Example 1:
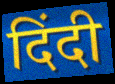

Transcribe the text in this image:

दिंदी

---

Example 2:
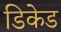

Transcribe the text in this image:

डिकेड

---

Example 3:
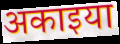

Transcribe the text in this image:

अकाइया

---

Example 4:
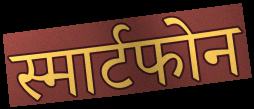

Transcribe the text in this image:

स्‍मार्टफोन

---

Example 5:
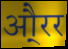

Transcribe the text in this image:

औ्रर